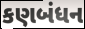
કણબંધન